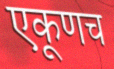
एकूणच